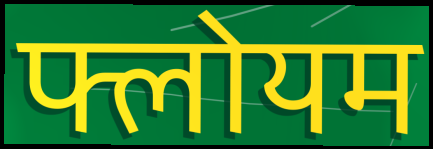
फ्लोयम